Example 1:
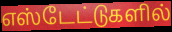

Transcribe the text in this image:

எஸ்டேட்டுகளில்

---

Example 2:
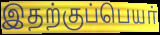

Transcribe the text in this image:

இதற்குப்பெயர்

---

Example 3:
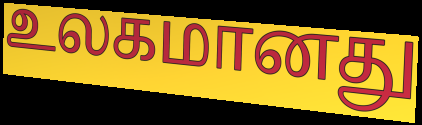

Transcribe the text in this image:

உலகமானது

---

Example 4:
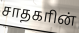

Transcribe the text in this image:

சாதகரின்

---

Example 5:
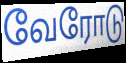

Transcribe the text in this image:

வேரோடு